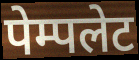
पेम्पलेट